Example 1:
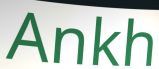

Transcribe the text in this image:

Ankh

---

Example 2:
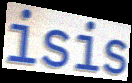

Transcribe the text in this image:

isis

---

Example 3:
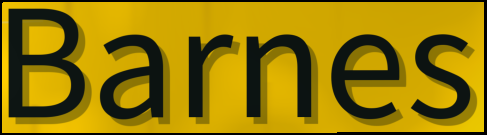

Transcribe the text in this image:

Barnes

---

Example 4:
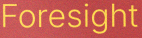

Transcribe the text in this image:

Foresight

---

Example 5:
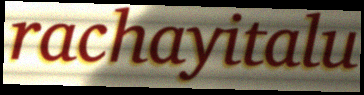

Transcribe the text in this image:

rachayitalu